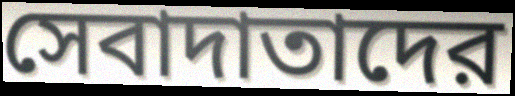
সেবাদাতাদের